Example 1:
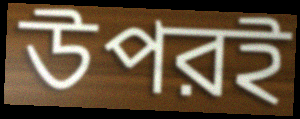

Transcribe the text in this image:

উপরই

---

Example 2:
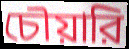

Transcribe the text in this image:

চৌয়ারি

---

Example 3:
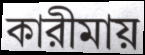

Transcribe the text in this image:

কারীমায়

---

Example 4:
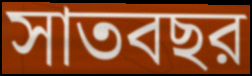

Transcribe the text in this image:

সাতবছর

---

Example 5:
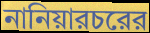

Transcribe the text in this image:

নানিয়ারচরের